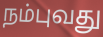
நம்புவது